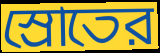
স্রোতের